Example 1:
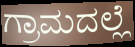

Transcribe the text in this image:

ಗ್ರಾಮದಲ್ಲೆ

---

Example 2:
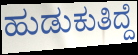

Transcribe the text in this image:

ಹುಡುಕುತಿದ್ದೆ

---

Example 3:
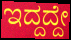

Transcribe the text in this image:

ಇದ್ದದ್ದೇ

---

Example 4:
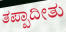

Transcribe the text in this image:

ತಪ್ಪಾದೀತು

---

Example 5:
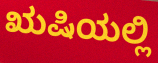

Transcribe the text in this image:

ಋಷಿಯಲ್ಲಿ